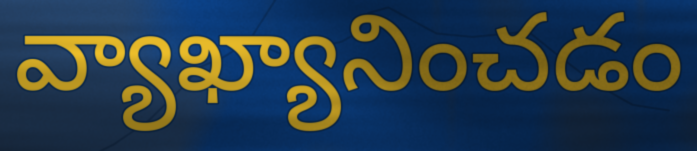
వ్యాఖ్యానించడం